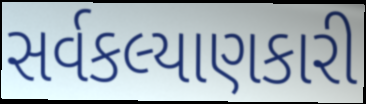
સર્વકલ્યાણકારી